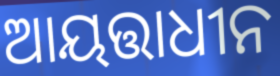
ଆୟତ୍ତାଧୀନ